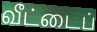
வீட்டைப்